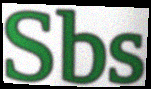
Sbs